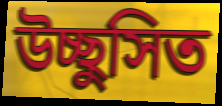
উচ্ছুসিত